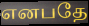
எனபதே